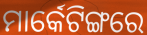
ମାର୍କେଟିଙ୍ଗରେ